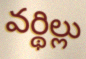
వర్థిల్లు